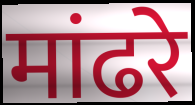
मांढरे